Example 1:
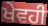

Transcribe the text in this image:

ਖੇਵਹੀ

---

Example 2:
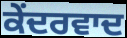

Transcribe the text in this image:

ਕੇਂਦਰਵਾਦ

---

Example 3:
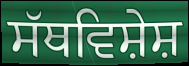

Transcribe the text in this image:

ਸੱਥਵਿਸ਼ੇਸ਼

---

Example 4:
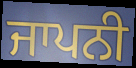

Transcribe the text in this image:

ਜਾਪਨੀ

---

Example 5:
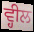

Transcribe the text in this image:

ਵ੍ਹੀਲ